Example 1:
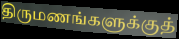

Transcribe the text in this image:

திருமணங்களுக்குத்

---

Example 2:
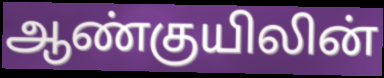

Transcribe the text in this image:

ஆண்குயிலின்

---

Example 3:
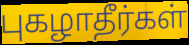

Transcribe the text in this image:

புகழாதீர்கள்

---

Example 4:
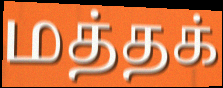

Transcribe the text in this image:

மத்தக்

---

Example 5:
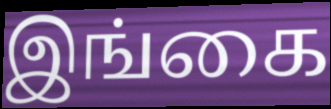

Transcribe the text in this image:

இங்கை